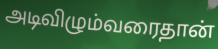
அடிவிழும்வரைதான்